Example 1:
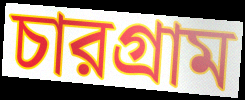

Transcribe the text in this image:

চারগ্রাম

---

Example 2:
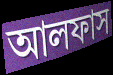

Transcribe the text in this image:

আলফাস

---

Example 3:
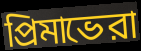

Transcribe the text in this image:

প্রিমাভেরা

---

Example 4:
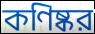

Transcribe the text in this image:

কণিষ্কর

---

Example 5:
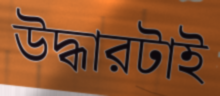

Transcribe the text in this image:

উদ্ধারটাই